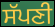
ਸੱਪਣੀ